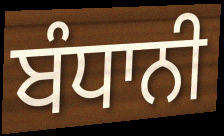
ਬੰਧਾਨੀ